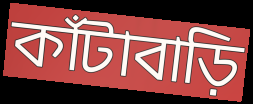
কাঁটাবাড়ি